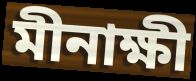
মীনাক্ষী